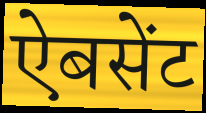
ऐबसेंट